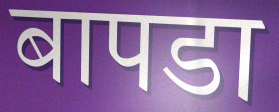
बापडा